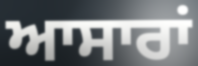
ਆਸਾਰਾਂ